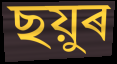
ছয়ুৰ